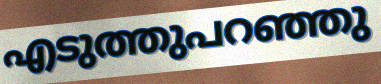
എടുത്തുപറഞ്ഞു